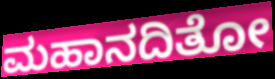
ಮಹಾನದಿತೋ